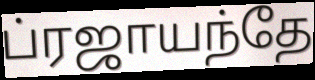
ப்ரஜாயந்தே